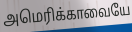
அமெரிக்காவையே